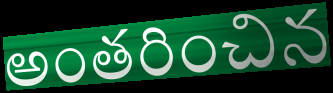
అంతరించిన